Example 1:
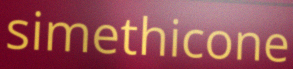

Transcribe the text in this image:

simethicone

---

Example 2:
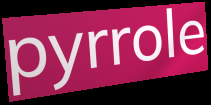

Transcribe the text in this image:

pyrrole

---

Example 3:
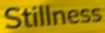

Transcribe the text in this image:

Stillness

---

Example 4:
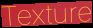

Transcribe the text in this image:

Texture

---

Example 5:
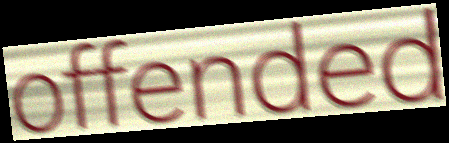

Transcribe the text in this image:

offended